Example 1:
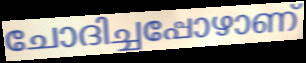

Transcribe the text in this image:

ചോദിച്ചപ്പോഴാണ്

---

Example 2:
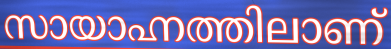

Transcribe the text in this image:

സായാഹ്നത്തിലാണ്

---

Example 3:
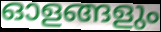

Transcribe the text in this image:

ഓളങ്ങളും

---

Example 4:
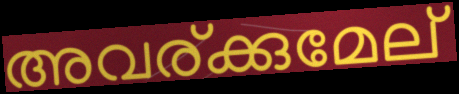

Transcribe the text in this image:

അവര്ക്കുമേല്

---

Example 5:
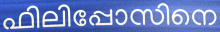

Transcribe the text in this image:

ഫിലിപ്പോസിനെ